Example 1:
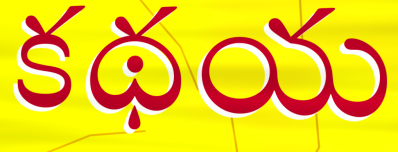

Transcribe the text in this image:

కథయ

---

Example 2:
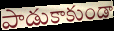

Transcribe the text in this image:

పాడుకాకుండా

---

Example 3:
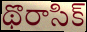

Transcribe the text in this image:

థొరాసిక్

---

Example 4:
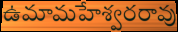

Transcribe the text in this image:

ఉమామహేశ్వరరావు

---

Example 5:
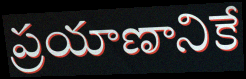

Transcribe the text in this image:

ప్రయాణానికే